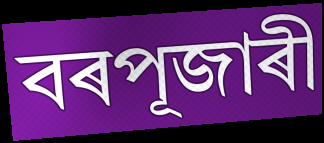
বৰপূজাৰী